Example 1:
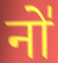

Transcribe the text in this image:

नो॑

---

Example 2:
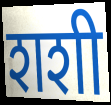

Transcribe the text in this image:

शशी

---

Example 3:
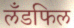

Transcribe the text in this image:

लँडफिल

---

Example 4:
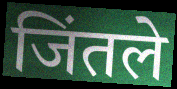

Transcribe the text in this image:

जिंतले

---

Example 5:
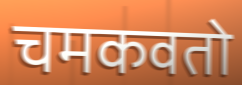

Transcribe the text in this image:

चमकवतो